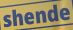
shende